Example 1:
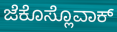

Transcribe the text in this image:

ಜೆಕೊಸ್ಲೊವಾಕ್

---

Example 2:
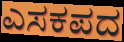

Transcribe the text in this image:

ಎಸಕಪದ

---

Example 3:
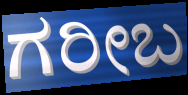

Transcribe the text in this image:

ಗರೀಬ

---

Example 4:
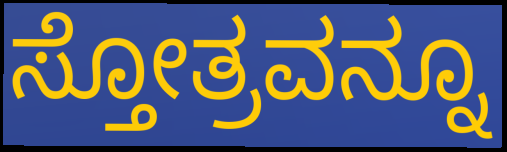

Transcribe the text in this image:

ಸ್ತೋತ್ರವನ್ನೂ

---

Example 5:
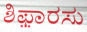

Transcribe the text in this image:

ಶಿಫ಼ಾರಸು